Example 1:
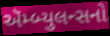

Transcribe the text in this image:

ઍમ્બ્યુલન્સનો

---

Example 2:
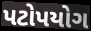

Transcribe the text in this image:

પટોપયોગ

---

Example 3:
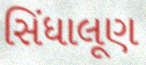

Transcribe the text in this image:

સિંધાલૂણ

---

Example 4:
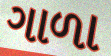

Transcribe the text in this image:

ગાળા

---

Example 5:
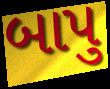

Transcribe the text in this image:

બાપુ